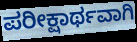
ಪರೀಕ್ಷಾರ್ಥವಾಗಿ